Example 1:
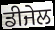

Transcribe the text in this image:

ਡੀਜੇਲ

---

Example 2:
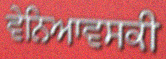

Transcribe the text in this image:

ਵੇਨਿਆਵਸਕੀ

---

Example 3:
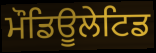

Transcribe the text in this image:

ਮੌਡਿਊਲੇਟਿਡ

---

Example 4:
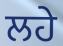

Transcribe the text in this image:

ਲਹੇ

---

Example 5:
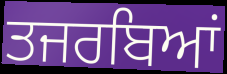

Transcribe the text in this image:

ਤਜਰਬਿਆਂ